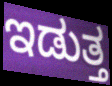
ಇಡುತ್ತ